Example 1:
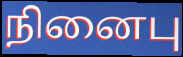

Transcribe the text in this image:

நினைபு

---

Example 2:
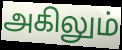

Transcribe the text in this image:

அகிலும்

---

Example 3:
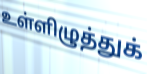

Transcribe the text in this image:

உள்ளிழுத்துக்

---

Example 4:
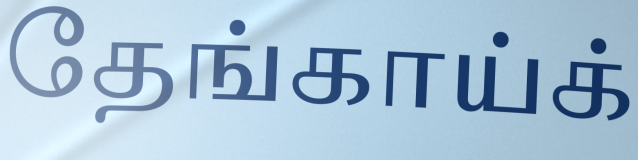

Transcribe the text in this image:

தேங்காய்க்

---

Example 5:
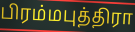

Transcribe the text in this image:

பிரம்மபுத்திரா